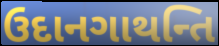
ઉદાનગાથન્તિ